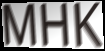
MHK